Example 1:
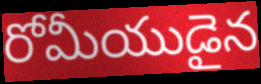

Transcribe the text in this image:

రోమీయుడైన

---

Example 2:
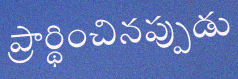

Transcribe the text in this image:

ప్రార్థించినప్పుడు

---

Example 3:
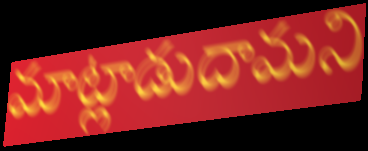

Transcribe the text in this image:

మాట్లాడుదామని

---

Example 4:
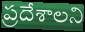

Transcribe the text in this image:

ప్రదేశాలని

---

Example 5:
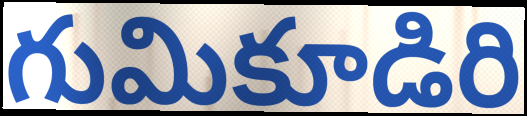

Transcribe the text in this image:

గుమికూడిరి